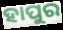
ହାପୁର